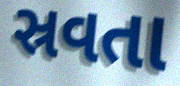
સ્રવતા